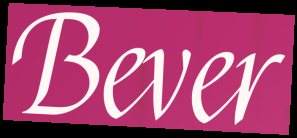
Bever